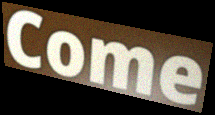
Come